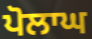
ਪੋਲਾਘ